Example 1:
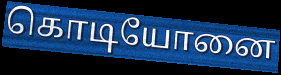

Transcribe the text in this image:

கொடியோனை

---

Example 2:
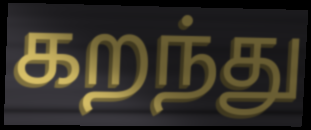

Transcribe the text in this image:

கறந்து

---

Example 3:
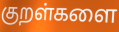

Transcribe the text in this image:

குறள்களை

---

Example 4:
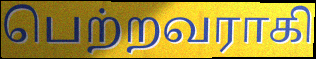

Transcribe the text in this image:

பெற்றவராகி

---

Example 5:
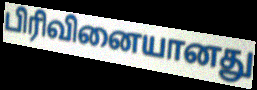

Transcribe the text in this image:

பிரிவினையானது